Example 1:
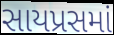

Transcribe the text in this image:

સાયપ્રસમાં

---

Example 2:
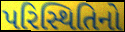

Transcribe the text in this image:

પરિસ્થિતિનો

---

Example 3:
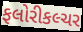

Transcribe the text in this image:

ફલોરીકલ્ચર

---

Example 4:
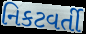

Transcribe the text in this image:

નિકટવર્તી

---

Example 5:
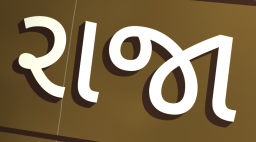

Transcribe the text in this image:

રાજા